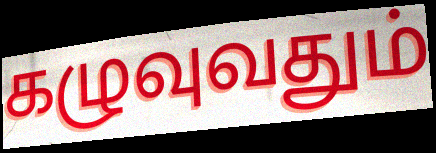
கழுவுவதும்